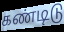
கண்டிடு